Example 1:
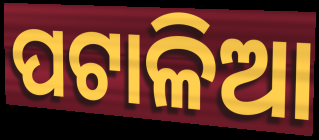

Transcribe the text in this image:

ପଟାଳିଆ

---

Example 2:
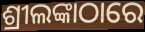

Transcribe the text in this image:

ଶ୍ରୀଲଙ୍କାଠାରେ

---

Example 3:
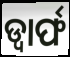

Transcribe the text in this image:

ଡ୍ୱାର୍ଫ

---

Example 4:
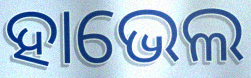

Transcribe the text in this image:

ହାଭେଲ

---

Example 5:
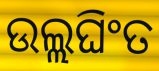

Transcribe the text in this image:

ଉଲ୍ଲଘିଂତ